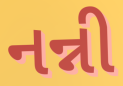
નન્ની